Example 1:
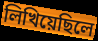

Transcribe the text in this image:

লিখিয়েছিলে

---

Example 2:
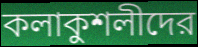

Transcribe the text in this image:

কলাকুশলীদের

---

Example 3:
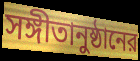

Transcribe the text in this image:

সঙ্গীতানুষ্ঠানের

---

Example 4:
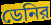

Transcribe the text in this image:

ডেনির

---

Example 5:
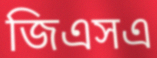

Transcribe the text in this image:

জিএসএ